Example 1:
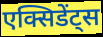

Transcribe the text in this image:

एक्सिडेंट्स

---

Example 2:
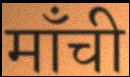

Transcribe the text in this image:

माँची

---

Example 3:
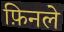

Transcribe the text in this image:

फ़िनले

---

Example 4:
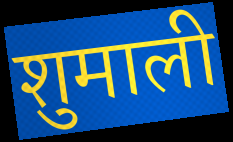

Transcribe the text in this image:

शुमाली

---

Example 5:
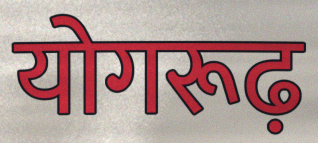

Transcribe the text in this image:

योगरूढ़